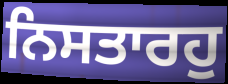
ਨਿਸਤਾਰਹੁ